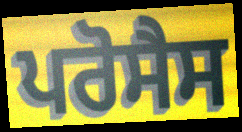
ਪਰੋਸੈਸ